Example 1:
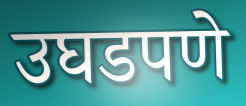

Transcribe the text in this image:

उघडपणे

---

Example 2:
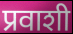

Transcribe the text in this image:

प्रवाशी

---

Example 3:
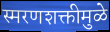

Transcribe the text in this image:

स्मरणशक्तीमुळे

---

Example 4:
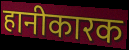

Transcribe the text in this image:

हानीकारक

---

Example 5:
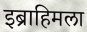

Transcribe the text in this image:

इब्राहिमला